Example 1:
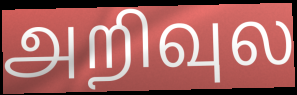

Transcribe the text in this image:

அறிவுல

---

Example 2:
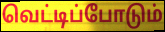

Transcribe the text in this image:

வெட்டிப்போடும்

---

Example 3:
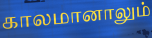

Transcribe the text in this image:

காலமானாலும்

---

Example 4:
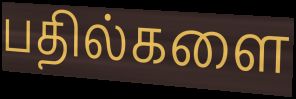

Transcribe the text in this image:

பதில்களை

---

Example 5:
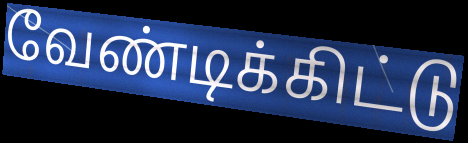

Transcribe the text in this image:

வேண்டிக்கிட்டு